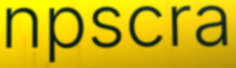
npscra